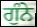
ਗੁੰਨੇ